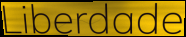
Liberdade